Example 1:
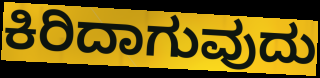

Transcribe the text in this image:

ಕಿರಿದಾಗುವುದು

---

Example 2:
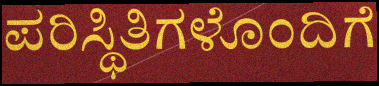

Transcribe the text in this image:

ಪರಿಸ್ಥಿತಿಗಳೊಂದಿಗೆ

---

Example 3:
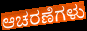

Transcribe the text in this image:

ಆಚರಣೆಗಳು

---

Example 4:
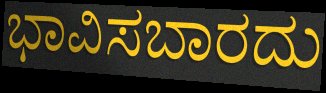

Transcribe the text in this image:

ಭಾವಿಸಬಾರದು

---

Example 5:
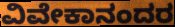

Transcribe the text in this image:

ವಿವೇಕಾನಂದರ